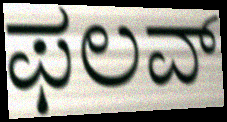
ಫಲವ್